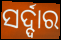
ସର୍ଦ୍ଦାର